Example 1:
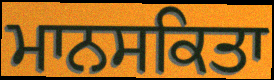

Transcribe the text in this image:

ਮਾਨਸਕਿਤਾ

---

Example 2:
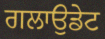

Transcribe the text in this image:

ਗਲਾਉਡੇਟ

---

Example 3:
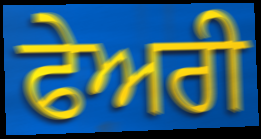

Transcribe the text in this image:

ਫੇਅਰੀ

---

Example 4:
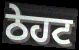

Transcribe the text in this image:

ਠੇਹਟ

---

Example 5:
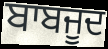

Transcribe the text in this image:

ਬਾਬਜੂਦ